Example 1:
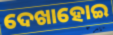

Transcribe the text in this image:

ଦେଖାହୋଇ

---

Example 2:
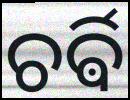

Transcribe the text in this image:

ଚର୍ଵି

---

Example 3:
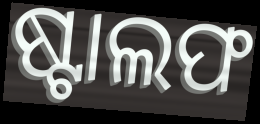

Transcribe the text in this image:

ଷ୍ଟାଲଫ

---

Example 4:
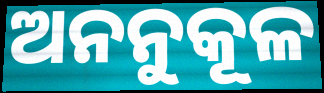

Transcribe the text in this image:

ଅନନୁକୂଳ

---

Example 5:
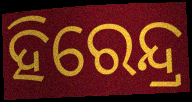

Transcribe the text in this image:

ହିରେନ୍ଦ୍ର